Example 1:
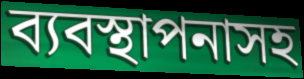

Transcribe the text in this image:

ব্যবস্থাপনাসহ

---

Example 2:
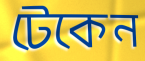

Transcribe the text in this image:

টেকেন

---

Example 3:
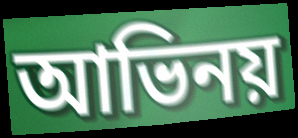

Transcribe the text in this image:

আভিনয়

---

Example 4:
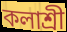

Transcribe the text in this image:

কলাশ্রী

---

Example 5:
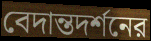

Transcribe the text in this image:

বেদান্তদর্শনের